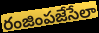
రంజింపజేసేలా